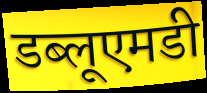
डब्लूएमडी